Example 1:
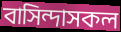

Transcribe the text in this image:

বাসিন্দাসকল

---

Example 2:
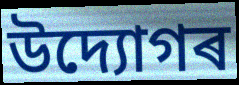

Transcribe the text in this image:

উদ্যোগৰ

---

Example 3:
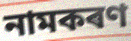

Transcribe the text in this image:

নামকৰণ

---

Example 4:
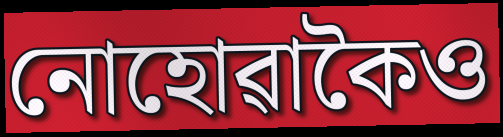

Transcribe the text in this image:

নোহোৱাকৈও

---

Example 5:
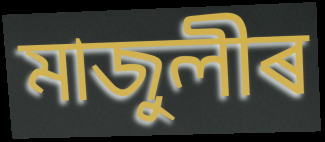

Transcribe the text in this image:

মাজুলীৰ